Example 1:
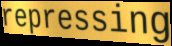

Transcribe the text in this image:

repressing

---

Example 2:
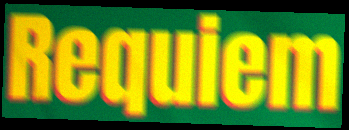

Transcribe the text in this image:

Requiem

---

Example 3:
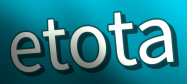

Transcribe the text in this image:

etota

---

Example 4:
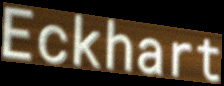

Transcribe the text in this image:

Eckhart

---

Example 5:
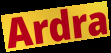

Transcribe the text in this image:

Ardra